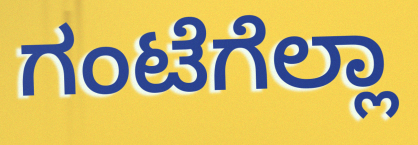
ಗಂಟೆಗೆಲ್ಲಾ